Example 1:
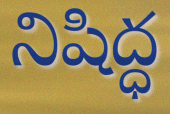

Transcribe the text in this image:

నిషిద్ధ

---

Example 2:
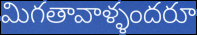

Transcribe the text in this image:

మిగతావాళ్ళందరూ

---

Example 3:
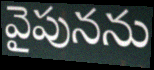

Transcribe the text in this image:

వైపునను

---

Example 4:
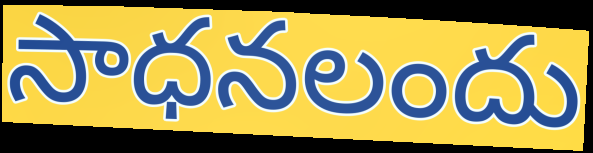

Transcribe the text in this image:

సాధనలందు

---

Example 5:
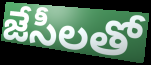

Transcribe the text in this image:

జేసీలతో